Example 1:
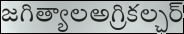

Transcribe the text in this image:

జగిత్యాలఅగ్రికల్చర్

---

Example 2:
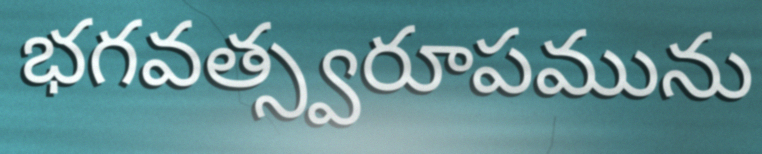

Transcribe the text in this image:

భగవత్స్వరూపమును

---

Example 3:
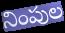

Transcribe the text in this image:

నింపుల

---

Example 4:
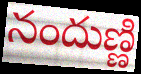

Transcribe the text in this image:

నందుణ్ణి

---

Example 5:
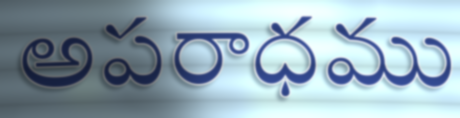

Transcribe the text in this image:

అపరాధము